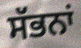
ਸੱਭਨਾਂ